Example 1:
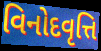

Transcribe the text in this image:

વિનોદવૃત્તિ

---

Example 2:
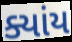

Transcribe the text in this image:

ક્યાંય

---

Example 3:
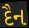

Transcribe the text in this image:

દૈન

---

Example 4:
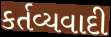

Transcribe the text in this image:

કર્તવ્યવાદી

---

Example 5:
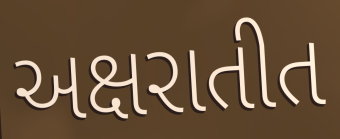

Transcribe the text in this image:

અક્ષરાતીત